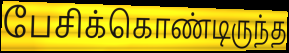
பேசிக்கொண்டிருந்த